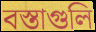
বস্তাগুলি